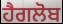
ਹੈਗਲੋਬ